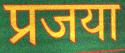
प्रजया